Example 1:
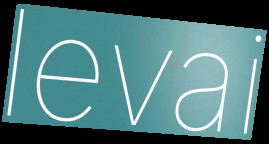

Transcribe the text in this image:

levai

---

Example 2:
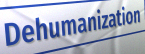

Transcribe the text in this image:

Dehumanization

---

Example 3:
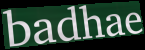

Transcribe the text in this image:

badhae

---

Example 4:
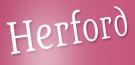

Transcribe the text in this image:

Herford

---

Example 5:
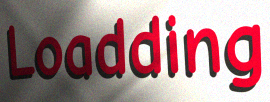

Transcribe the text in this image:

Loadding